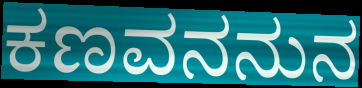
ಕಣವನನುನ